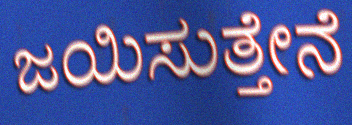
ಜಯಿಸುತ್ತೇನೆ